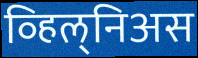
व्हिल्निअस